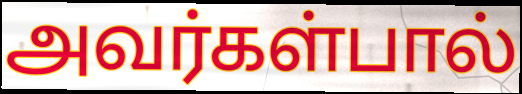
அவர்கள்பால்